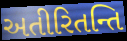
અતીરિતન્તિ